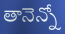
తానెన్నో